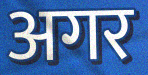
अगर